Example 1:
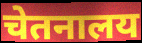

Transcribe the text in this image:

चेतनालय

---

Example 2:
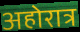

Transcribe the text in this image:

अहोरात्र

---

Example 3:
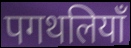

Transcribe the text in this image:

पगथलियाँ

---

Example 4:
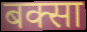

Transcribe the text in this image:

बक्सा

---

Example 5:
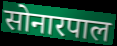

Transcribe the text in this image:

सोनारपाल